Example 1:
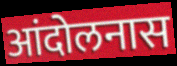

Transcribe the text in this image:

आंदोलनास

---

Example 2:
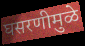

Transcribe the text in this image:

घसरणीमुळे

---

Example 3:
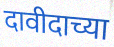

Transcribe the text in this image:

दावीदाच्या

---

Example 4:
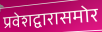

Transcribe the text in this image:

प्रवेशद्वारासमोर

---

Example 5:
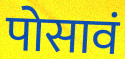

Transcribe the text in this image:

पोसावं